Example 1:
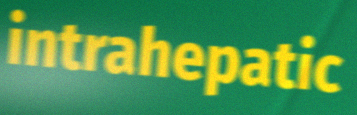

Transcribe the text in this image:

intrahepatic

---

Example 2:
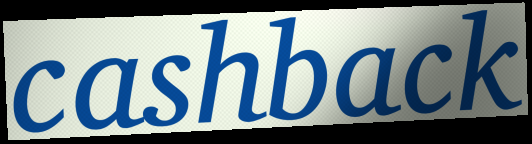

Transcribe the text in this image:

cashback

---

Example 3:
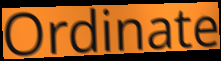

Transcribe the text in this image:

Ordinate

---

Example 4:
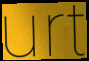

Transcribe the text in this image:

urt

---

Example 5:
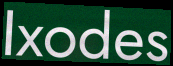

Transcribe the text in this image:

Ixodes